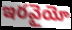
ఇరవైయో